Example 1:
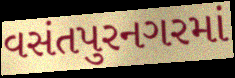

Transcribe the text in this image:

વસંતપુરનગરમાં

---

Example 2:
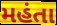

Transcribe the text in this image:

મહંતા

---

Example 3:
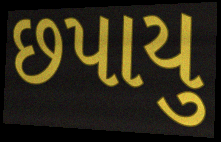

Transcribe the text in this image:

છપાયુ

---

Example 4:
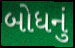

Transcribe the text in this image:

બોધનું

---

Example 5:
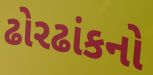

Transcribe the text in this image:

ઢોરઢાંકનો